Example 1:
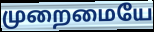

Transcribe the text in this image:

முறைமையே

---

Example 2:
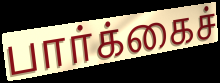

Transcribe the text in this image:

பார்க்கைச்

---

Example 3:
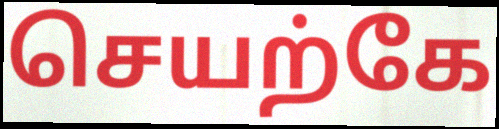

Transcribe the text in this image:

செயற்கே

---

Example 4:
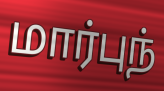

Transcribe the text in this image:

மார்புந்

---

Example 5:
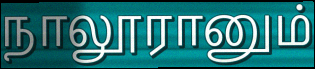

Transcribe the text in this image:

நாலூரானும்